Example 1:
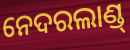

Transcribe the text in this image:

ନେଦରଲାଣ୍ଡ୍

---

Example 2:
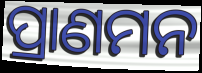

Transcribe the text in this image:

ପ୍ରାଣମନ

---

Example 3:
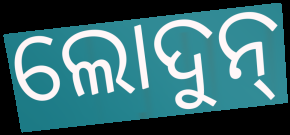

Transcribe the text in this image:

ଲୋଦୁନ୍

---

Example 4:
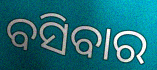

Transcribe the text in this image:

ବସିବାର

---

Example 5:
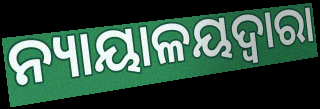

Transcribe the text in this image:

ନ୍ୟାୟାଳୟଦ୍ୱାରା